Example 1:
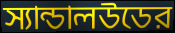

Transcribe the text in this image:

স্যান্ডালউডের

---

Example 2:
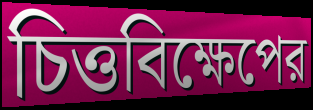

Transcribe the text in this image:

চিত্তবিক্ষেপের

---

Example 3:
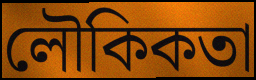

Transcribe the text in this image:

লৌকিকতা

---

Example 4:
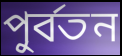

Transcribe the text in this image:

পুর্বতন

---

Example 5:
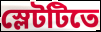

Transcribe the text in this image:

স্লেটটিতে